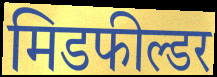
मिडफील्डर